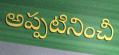
అప్పటినించీ